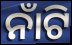
ନାଁଟି